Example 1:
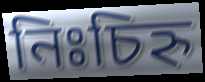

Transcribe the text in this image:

নিঃচিহ্ন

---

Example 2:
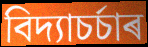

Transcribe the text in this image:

বিদ্যাচৰ্চাৰ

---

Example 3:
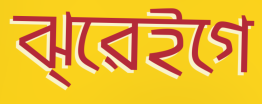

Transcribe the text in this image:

ঝ্ৱেইগে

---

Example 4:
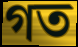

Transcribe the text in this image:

গত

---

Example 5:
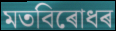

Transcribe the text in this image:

মতবিৰোধৰ